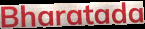
Bharatada